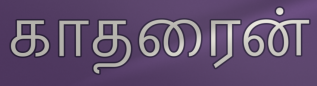
காதரைன்